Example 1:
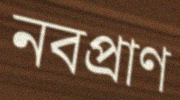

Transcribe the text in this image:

নবপ্রাণ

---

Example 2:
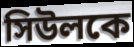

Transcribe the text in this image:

সিউলকে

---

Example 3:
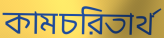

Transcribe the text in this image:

কামচরিতার্থ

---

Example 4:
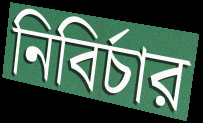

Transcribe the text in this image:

নিবির্চার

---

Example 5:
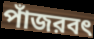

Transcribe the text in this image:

পাঁজরবৎ